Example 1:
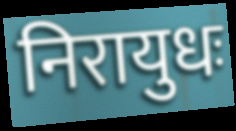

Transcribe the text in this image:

निरायुधः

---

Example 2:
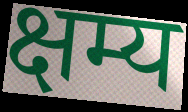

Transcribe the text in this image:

क्षम्य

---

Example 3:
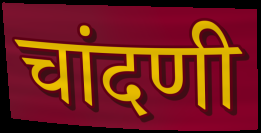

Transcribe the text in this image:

चांदणी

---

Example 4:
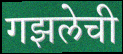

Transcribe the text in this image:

गझलेची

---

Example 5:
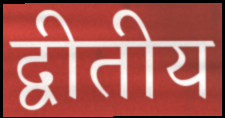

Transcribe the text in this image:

द्वीतीय